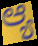
ಆ್ಯ